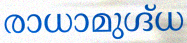
രാധാമുഗ്ദ്ധ